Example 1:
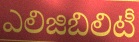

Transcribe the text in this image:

ఎలిజిబిలిటీ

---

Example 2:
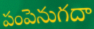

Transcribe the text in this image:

పంపెనుగదా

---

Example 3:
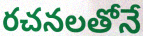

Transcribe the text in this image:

రచనలతోనే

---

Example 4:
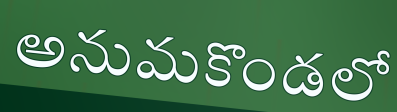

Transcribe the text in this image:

అనుమకొండలో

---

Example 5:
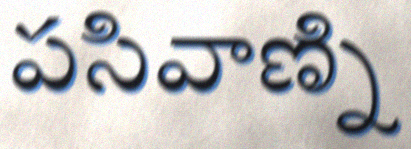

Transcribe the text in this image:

పసివాణ్ని